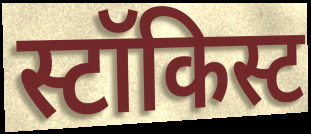
स्टॉकिस्ट